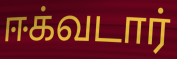
ஈக்வடார்